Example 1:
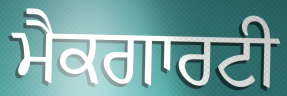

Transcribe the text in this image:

ਮੈਕਗਾਰਟੀ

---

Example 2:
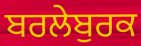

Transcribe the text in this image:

ਬਰਲੇਬੁਰਕ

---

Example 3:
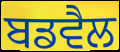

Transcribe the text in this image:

ਬਡਵੈਲ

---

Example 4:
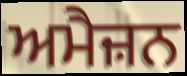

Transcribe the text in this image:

ਅਮੈਜ਼ਨ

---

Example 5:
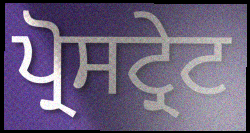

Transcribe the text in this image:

ਪ੍ਰੋਸਟ੍ਰੇਟ